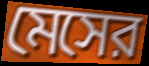
মেসের